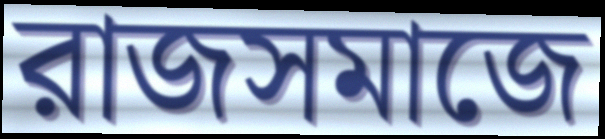
রাজসমাজে